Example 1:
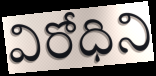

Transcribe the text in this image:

విరోధిని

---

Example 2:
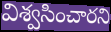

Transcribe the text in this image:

విశ్వసించారని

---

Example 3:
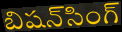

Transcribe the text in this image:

బిషన్‌సింగ్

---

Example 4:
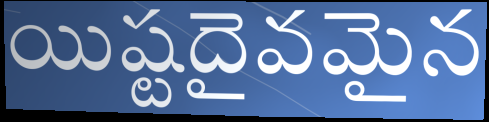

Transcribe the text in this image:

యిష్టదైవమైన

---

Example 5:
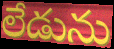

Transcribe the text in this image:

లేడును